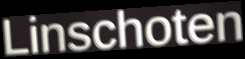
Linschoten